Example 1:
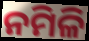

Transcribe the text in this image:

ନମିଳି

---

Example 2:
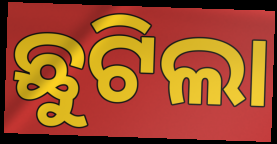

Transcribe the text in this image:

ଛୁଟିଲା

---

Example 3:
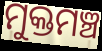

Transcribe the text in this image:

ମୁକ୍ତମଞ୍ଚ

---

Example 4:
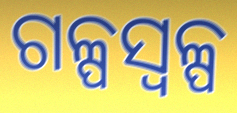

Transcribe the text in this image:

ଗଳ୍ପସ୍ୱଳ୍ପ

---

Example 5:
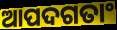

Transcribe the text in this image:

ଆପଦଗତାଂ